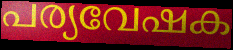
പര്യവേഷക